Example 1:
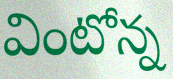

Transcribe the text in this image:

వింటోన్న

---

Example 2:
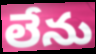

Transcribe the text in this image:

లేను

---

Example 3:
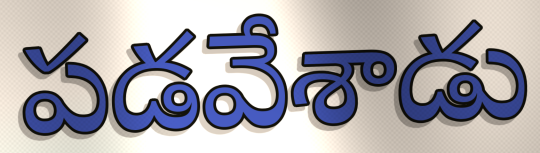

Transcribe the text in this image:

పడవేశాడు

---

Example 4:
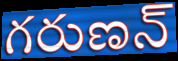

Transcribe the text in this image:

గరుణన్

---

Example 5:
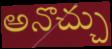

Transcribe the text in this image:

అనొచ్చు